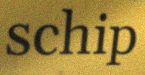
schip